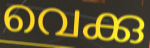
വെക്കു